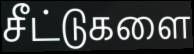
சீட்டுகளை